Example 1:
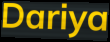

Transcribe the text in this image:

Dariya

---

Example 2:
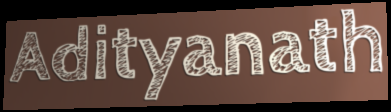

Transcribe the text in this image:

Adityanath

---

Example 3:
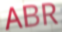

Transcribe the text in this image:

ABR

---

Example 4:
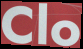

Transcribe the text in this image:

Clo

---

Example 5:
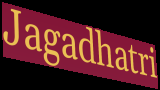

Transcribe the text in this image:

Jagadhatri